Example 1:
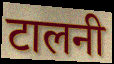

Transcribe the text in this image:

टालनी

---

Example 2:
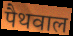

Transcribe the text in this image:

पैथवाल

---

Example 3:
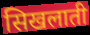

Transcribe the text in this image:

सिखलाती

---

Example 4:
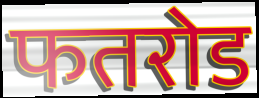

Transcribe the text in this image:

फतरोड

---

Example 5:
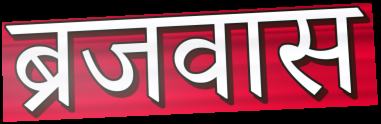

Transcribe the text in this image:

ब्रजवास